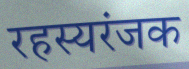
रहस्यरंजक